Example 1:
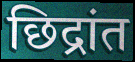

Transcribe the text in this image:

छिद्रांत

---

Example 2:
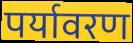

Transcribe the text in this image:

पर्यावरण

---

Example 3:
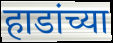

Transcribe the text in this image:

हाडांच्या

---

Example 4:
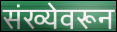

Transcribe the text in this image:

संख्येवरून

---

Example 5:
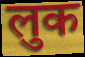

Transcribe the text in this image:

लुक